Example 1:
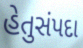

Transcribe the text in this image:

હેતુસંપદા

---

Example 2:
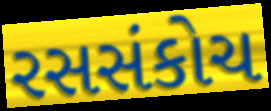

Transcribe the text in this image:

રસસંકોચ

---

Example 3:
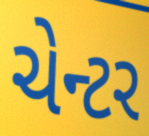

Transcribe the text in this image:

ચેન્ટર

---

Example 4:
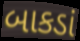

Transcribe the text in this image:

બાકડાં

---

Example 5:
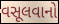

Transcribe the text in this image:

વસૂલવાનો